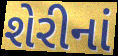
શેરીનાં